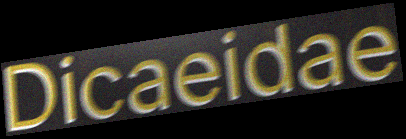
Dicaeidae